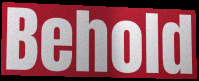
Behold